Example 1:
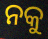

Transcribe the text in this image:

ନକୁ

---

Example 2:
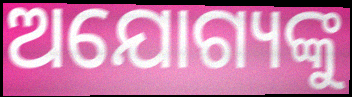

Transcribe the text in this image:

ଅଯୋଗ୍ୟଙ୍କୁ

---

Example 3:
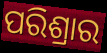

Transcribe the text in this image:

ପରିଶ୍ରାର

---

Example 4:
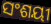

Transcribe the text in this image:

ସଂଶୟୀ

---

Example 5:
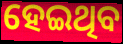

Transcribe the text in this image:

ହେଇଥିବ